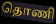
தொணி